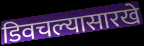
डिवचल्यासारखे